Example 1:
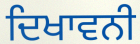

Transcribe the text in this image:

ਦਿਖਾਵਨੀ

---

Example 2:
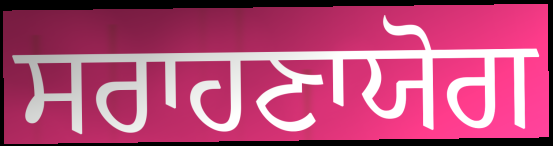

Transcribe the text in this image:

ਸਰਾਹਣਾਯੋਗ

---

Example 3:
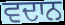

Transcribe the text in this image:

ਵਦਾਨ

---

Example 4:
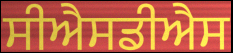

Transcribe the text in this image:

ਸੀਐਸਡੀਐਸ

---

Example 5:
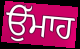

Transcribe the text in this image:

ਉੱਮਾਹ